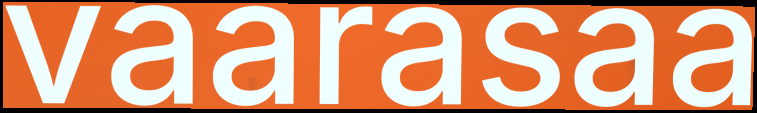
vaarasaa